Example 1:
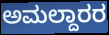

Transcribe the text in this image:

ಅಮಲ್ದಾರರ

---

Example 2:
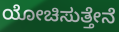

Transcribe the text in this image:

ಯೋಚಿಸುತ್ತೇನೆ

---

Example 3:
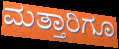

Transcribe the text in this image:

ಮತ್ತಾರಿಗೂ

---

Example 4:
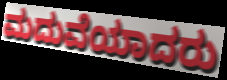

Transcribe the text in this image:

ಮದುವೆಯಾದರು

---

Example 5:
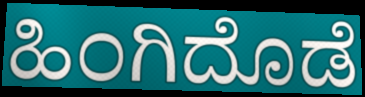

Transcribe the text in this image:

ಹಿಂಗಿದೊಡೆ